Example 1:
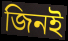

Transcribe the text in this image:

জিনই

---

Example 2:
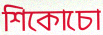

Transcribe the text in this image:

শিকোচো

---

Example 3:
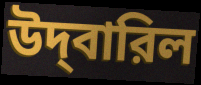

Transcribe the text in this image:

উদ্‌বারিল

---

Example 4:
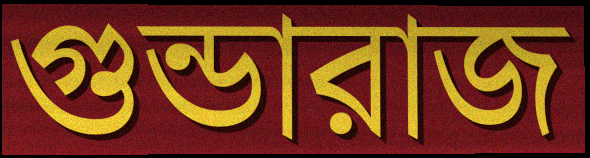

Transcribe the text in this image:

গুন্ডারাজ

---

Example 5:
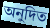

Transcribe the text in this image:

অনুদিত